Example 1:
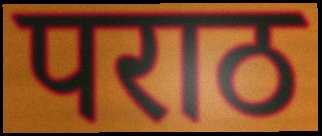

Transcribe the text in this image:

पराठ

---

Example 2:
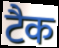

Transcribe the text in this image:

टैक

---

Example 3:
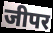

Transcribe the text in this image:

जीपर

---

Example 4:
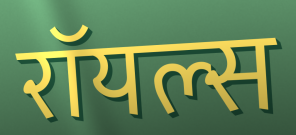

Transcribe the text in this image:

रॉयल्‍स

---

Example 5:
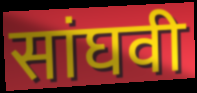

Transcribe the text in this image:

सांघवी